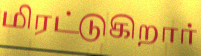
மிரட்டுகிறார்